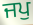
ਜਪੁ